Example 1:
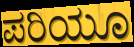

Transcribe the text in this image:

ಪರಿಯೂ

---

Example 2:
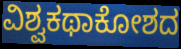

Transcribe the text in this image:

ವಿಶ್ವಕಥಾಕೋಶದ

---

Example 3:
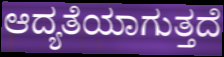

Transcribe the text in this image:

ಆದ್ಯತೆಯಾಗುತ್ತದೆ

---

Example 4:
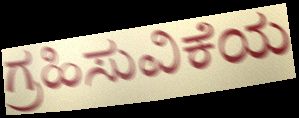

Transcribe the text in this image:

ಗ್ರಹಿಸುವಿಕೆಯ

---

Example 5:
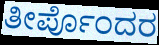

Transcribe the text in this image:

ತೀರ್ಪೊಂದರ